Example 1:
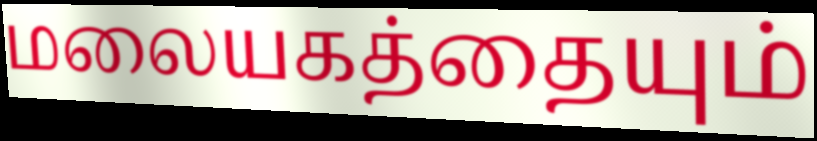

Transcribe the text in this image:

மலையகத்தையும்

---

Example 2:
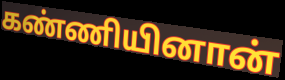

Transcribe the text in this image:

கண்ணியினான்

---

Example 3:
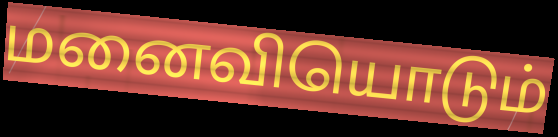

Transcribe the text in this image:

மனைவியொடும்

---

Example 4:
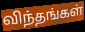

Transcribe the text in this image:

விந்தங்கள்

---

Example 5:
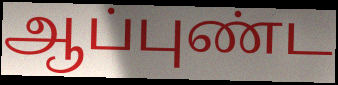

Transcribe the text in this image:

ஆப்புண்ட